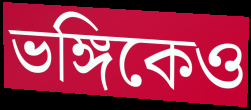
ভঙ্গিকেও